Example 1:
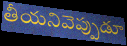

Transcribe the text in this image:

తీయనివెప్పుడూ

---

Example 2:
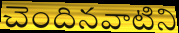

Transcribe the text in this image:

చెందినవాటిని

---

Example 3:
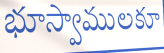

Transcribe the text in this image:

భూస్వాములకూ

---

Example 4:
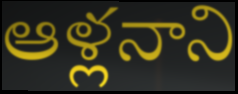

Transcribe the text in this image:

ఆళ్లనాని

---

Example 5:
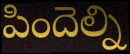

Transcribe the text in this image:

పిందెల్ని